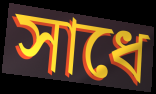
সাধে